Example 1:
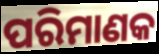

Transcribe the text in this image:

ପରିମାଣକ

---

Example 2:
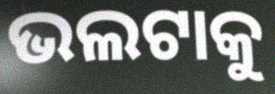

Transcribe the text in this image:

ଭଲଟାକୁ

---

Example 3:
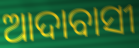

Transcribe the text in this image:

ଆଦାବାସୀ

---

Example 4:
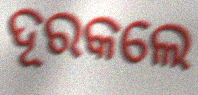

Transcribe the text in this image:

ଦୂରକଲେ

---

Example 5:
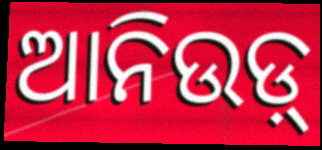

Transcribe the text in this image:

ଆନିଉଡ଼୍